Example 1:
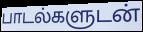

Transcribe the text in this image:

பாடல்களுடன்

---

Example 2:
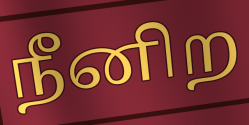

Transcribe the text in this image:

நீனிற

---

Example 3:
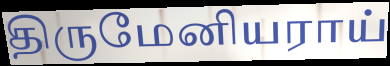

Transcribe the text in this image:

திருமேனியராய்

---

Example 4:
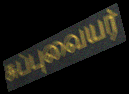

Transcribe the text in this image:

சுப்புவையர்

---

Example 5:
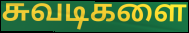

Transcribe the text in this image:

சுவடிகளை